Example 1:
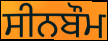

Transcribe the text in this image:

ਸੀਨਬੌਮ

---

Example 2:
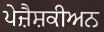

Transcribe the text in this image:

ਪੇਜ਼ੈਸ਼ਕੀਅਨ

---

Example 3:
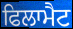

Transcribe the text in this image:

ਫਿਲਾਮੈਟ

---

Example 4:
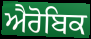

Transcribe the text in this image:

ਐਰੋਬਿਕ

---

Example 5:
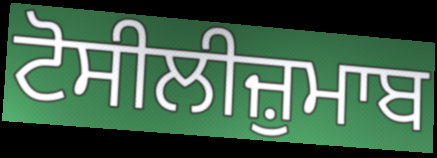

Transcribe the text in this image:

ਟੋਸੀਲੀਜ਼ੁਮਾਬ